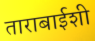
ताराबाईशी